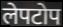
लेपटोप